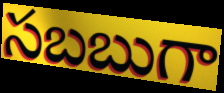
సబబుగా